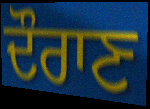
ਦੌਰਾਣ